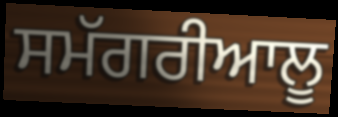
ਸਮੱਗਰੀਆਲੂ